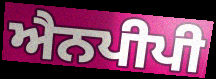
ਐਨਪੀਪੀ